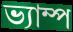
ভ্যাম্প